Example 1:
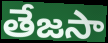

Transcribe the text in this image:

తేజసా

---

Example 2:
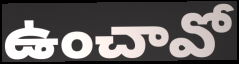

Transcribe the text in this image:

ఉంచావో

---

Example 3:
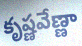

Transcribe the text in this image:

కృష్ణవేణ్ణా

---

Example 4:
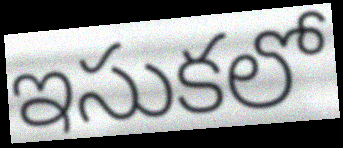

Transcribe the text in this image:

ఇసుకలో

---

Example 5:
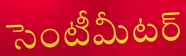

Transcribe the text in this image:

సెంటీమీటర్